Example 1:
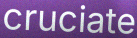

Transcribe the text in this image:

cruciate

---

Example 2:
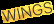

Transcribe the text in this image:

WINGS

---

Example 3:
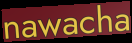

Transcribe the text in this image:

nawacha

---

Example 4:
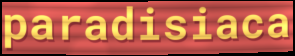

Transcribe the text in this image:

paradisiaca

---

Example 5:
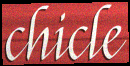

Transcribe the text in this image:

chicle